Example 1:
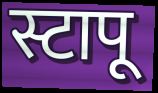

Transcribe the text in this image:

स्टापू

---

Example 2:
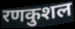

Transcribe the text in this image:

रणकुशल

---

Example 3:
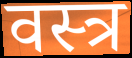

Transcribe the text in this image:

वस्त्र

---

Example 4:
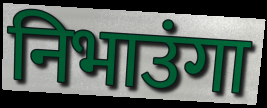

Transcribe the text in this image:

निभाउंगा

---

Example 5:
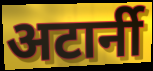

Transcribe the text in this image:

अटार्नी